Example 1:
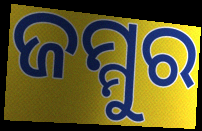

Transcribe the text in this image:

ଜମ୍ମୁର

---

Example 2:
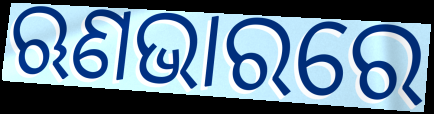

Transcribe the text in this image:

ଋଣଭାରରେ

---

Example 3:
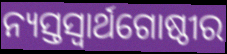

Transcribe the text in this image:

ନ୍ୟସ୍ତସ୍ୱାର୍ଥଗୋଷ୍ଠୀର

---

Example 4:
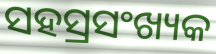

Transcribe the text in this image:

ସହସ୍ରସଂଖ୍ୟକ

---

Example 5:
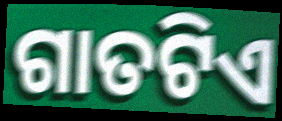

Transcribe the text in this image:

ଗାତଟିଏ